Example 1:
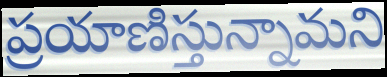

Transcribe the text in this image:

ప్రయాణిస్తున్నామని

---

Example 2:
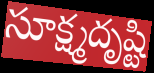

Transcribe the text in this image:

సూక్ష్మదృష్టి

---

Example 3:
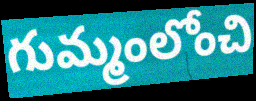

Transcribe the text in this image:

గుమ్మంలోంచి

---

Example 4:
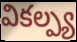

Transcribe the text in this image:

వికల్ప్య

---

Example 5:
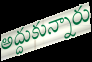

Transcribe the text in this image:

అద్దుకున్నారు